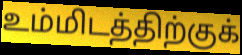
உம்மிடத்திற்குக்